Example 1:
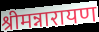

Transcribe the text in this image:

श्रीमन्नारायण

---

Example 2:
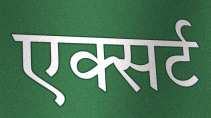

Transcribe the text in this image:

एक्सर्ट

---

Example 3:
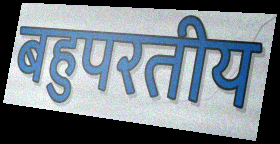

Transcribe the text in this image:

बहुपरतीय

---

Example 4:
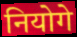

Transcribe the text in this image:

नियोगे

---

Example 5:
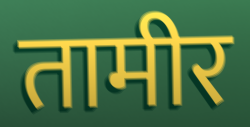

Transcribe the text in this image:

तामीर